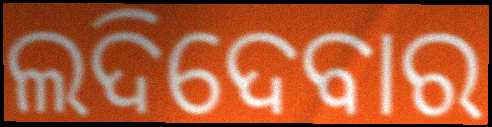
ଲଦିଦେବାର